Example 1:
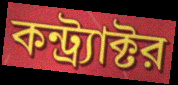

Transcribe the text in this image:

কন্ট্র্যাক্টর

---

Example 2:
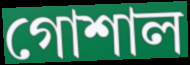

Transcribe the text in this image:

গোশাল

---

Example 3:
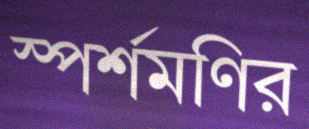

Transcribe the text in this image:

স্পর্শমণির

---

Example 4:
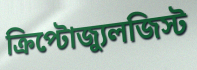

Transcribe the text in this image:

ক্রিপ্টোজ্যুলজিস্ট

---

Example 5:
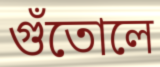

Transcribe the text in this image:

গুঁতোলে